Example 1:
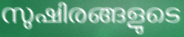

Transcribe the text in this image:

സുഷിരങ്ങളുടെ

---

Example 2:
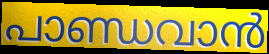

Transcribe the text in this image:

പാണ്ഡവാൻ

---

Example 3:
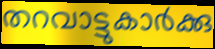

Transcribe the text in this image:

തറവാട്ടുകാർക്കു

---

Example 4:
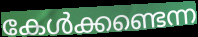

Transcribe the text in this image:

കേൾക്കണ്ടെന്ന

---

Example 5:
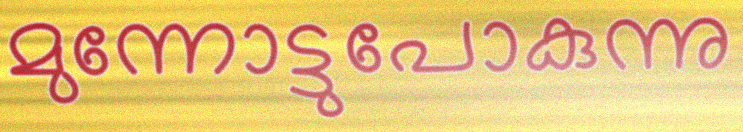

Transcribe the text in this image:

മുന്നോട്ടുപോകുന്നു